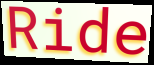
Ride